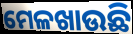
ମେଳଖାଉଛି